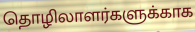
தொழிலாளர்களுக்காக